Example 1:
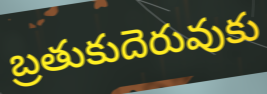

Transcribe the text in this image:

బ్రతుకుదెరువుకు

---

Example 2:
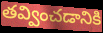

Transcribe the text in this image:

తవ్వించడానికి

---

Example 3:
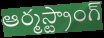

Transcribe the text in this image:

ఆర్మస్ట్రాంగ్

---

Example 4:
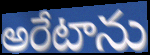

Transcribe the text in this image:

అరేటాను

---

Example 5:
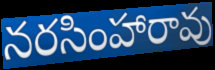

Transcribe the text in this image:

నరసింహారావు